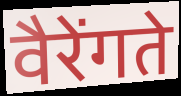
वैरेंगते